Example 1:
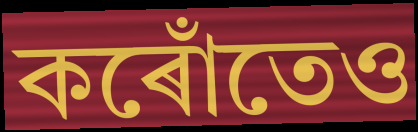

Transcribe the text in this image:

কৰোঁতেও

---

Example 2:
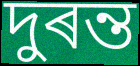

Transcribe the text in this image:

দুৰন্ত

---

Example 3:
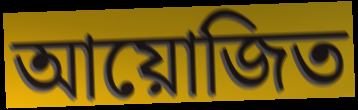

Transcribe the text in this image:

আয়োজিত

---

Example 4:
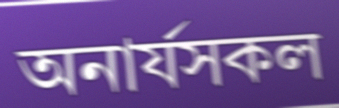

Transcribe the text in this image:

অনাৰ্যসকল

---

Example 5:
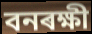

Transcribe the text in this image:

বনৰক্ষী